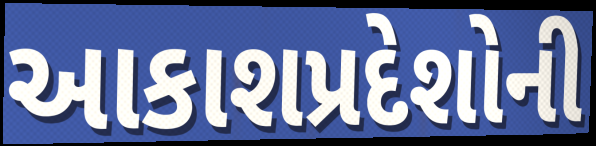
આકાશપ્રદેશોની